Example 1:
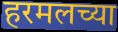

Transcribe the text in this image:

हरमलच्या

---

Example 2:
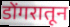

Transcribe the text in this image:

डोंगरातून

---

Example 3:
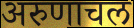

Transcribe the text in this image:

अरुणाचल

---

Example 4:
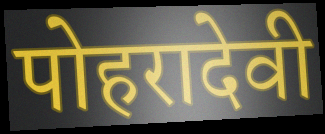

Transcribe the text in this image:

पोहरादेवी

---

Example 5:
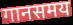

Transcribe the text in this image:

गानसमय